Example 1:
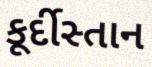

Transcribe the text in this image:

કૂર્દીસ્તાન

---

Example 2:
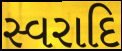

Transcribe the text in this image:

સ્વરાદિ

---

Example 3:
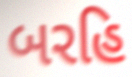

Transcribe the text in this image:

બરહિ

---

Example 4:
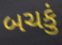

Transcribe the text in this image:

બચકું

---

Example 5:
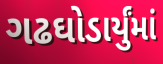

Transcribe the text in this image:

ગઢઘોડાર્યુંમાં